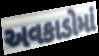
અવકાડોમાં